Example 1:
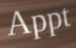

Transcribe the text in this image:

Appt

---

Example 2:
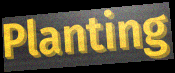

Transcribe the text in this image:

Planting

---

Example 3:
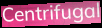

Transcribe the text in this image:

Centrifugal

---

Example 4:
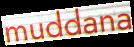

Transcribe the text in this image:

muddana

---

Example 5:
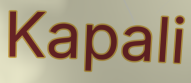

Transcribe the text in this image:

Kapali